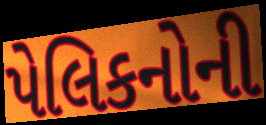
પેલિકનોની